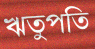
ঋতুপতি